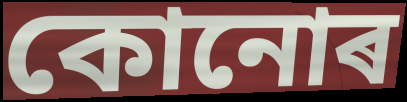
কোনোৰ